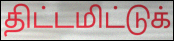
திட்டமிட்டுக்